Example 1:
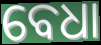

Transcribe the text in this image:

ବେଧା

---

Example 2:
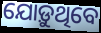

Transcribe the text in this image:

ଯୋଡ଼ୁଥିବେ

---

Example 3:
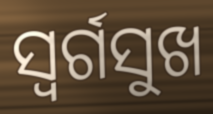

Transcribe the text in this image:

ସ୍ୱର୍ଗସୁଖ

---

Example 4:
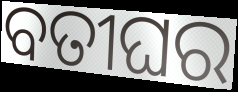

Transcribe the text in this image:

ବତୀଘର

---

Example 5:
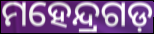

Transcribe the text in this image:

ମହେନ୍ଦ୍ରଗଡ଼